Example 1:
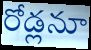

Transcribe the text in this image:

రోడ్లనూ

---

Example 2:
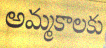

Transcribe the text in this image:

అమ్మకాలకు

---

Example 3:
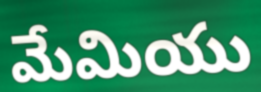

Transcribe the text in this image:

మేమియు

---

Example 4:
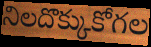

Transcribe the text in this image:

నిలదొక్కుకోగల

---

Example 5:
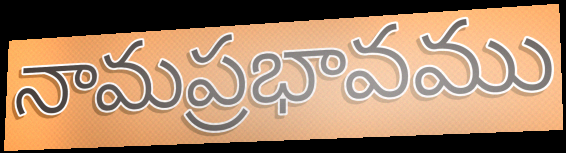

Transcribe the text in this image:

నామప్రభావము